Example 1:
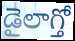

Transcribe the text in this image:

డైలాగ్తో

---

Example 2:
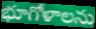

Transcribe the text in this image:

భూగోళాలను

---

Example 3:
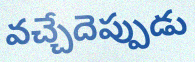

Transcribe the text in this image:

వచ్చేదెప్పుడు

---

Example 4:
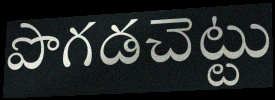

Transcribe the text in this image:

పొగడచెట్టు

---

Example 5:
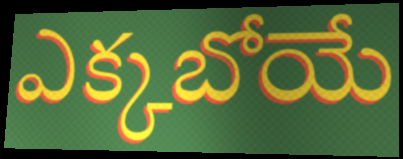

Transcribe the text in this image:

ఎక్కబోయే